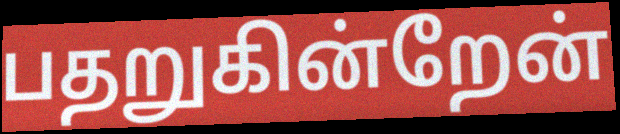
பதறுகின்றேன்